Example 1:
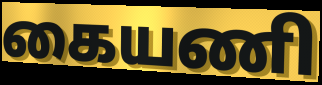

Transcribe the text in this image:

கையணி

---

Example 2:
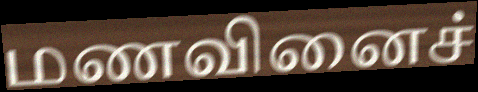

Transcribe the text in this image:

மணவினைச்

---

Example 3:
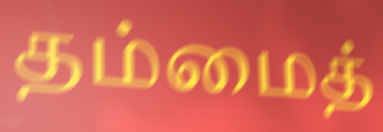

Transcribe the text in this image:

தம்மைத்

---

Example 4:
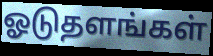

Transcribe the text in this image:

ஓடுதளங்கள்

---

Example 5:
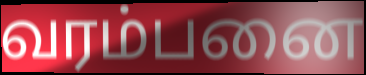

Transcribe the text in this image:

வரம்பனை